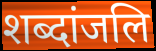
शब्दांजलि